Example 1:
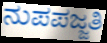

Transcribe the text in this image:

ನುಪಪಜ್ಜತಿ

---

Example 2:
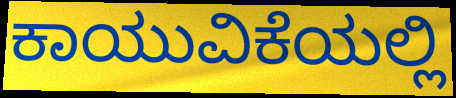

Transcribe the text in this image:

ಕಾಯುವಿಕೆಯಲ್ಲಿ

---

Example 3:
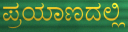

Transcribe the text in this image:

ಪ್ರಯಾಣದಲ್ಲಿ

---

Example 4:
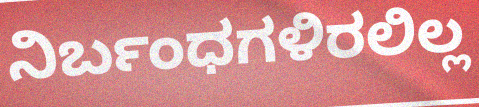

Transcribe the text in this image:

ನಿರ್ಬಂಧಗಳಿರಲಿಲ್ಲ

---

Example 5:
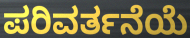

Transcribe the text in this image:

ಪರಿವರ್ತನೆಯೆ